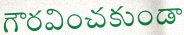
గౌరవించకుండా